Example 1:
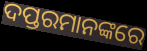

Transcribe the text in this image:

ଦପ୍ତରମାନଙ୍କରେ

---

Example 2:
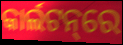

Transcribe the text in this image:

କାର୍ଲଟନ୍‌ରେ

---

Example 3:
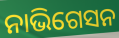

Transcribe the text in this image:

ନାଭିଗେସନ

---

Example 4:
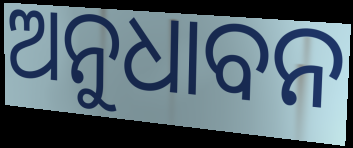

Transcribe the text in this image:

ଅନୁଧାବନ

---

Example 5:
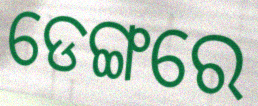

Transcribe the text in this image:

ଡେଙ୍ଗରେ